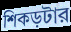
শিকড়টার